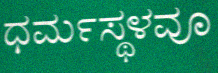
ಧರ್ಮಸ್ಥಳವೂ